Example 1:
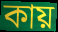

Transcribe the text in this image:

কায়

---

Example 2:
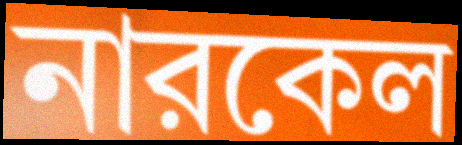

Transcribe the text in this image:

নারকেল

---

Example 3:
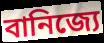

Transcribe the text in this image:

বানিজ্যে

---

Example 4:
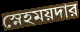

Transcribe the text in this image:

স্নেহময়দার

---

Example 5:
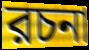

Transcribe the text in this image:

রচনা